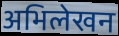
अभिलेखन